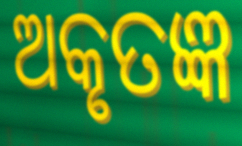
ଅକୃତଜ୍ଞ